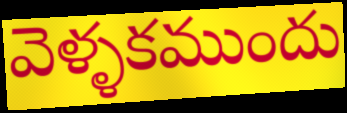
వెళ్ళకముందు